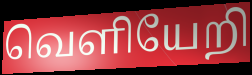
வெளியேறி